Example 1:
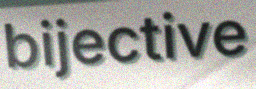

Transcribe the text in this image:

bijective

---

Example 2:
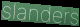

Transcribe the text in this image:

slanders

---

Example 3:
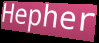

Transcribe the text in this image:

Hepher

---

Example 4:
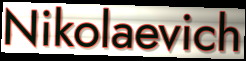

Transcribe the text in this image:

Nikolaevich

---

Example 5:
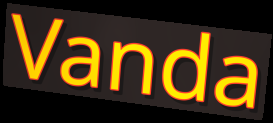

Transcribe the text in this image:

Vanda